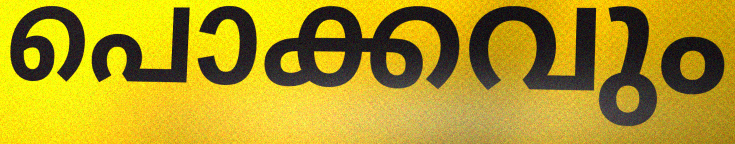
പൊക്കവും